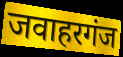
जवाहरगंज